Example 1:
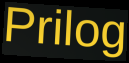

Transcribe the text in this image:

Prilog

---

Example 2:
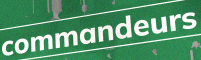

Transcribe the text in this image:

commandeurs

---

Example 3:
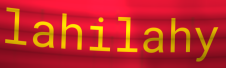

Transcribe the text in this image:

lahilahy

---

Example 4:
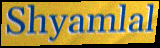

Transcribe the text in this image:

Shyamlal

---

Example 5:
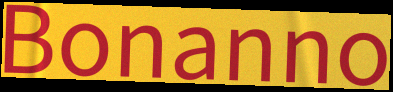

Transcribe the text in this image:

Bonanno